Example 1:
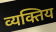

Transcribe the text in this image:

व्यक्तिय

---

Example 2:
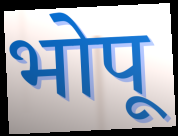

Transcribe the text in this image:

भोपू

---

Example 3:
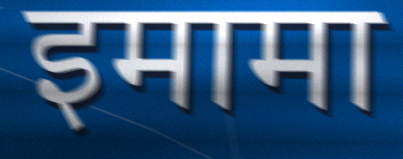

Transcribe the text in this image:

इमामा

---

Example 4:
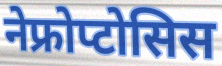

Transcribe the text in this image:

नेफ्रोप्टोसिस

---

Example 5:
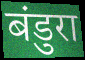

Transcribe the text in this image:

बंडुरा